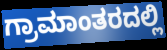
ಗ್ರಾಮಾಂತರದಲ್ಲಿ